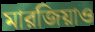
মারজিয়াও